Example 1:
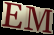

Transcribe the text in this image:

EM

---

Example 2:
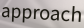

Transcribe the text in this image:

approach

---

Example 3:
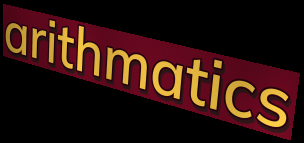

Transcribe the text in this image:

arithmatics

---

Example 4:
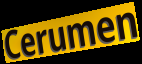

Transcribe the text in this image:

Cerumen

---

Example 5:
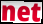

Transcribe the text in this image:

net